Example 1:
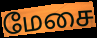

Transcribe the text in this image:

மேசை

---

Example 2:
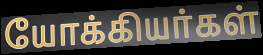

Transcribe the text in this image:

யோக்கியர்கள்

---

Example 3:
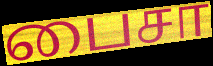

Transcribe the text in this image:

பைசா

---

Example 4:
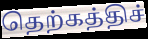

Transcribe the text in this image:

தெற்கத்திச்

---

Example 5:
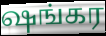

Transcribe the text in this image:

ஷங்கர